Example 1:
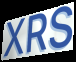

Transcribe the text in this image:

XRS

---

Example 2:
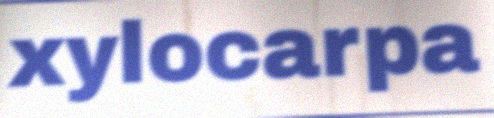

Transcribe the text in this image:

xylocarpa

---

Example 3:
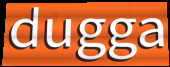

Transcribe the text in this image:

dugga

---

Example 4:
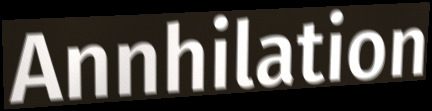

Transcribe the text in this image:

Annhilation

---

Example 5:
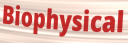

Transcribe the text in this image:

Biophysical